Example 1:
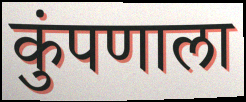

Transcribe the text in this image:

कुंपणाला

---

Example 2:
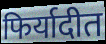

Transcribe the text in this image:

फिर्यादीत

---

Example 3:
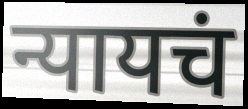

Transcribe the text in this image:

न्यायचं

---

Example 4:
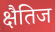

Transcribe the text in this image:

क्षैतिज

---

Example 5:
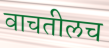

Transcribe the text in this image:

वाचतीलच